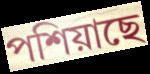
পশিয়াছে